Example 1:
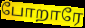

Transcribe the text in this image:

போறாரே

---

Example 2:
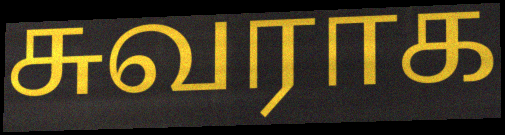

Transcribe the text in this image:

சுவராக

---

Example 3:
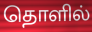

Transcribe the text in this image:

தொளில்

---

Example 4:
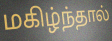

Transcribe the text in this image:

மகிழ்ந்தால்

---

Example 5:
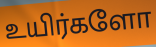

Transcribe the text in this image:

உயிர்களோ